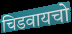
चिडवायचो